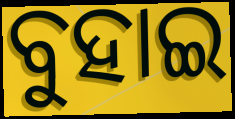
ବୁହାଇ